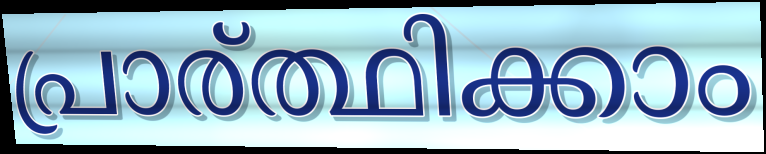
പ്രാര്ത്ഥിക്കാം